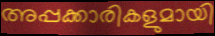
അപ്പക്കാരികളുമായി